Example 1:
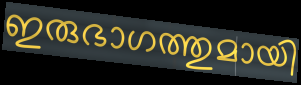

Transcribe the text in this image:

ഇരുഭാഗത്തുമായി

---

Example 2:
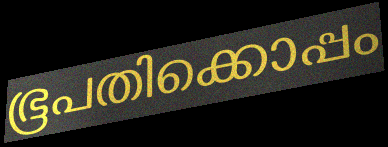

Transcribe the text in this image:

ഭൂപതിക്കൊപ്പം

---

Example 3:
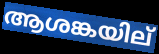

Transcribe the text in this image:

ആശങ്കയില്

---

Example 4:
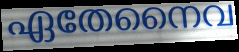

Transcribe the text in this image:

ഏതേനൈവ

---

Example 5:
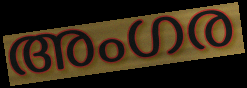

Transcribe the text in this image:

അംഗര